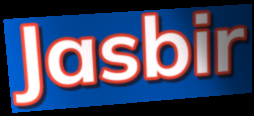
Jasbir